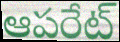
ఆపరేట్